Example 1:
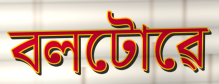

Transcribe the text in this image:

বলটোৱে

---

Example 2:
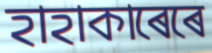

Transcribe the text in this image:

হাহাকাৰেৰে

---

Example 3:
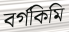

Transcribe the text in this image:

বৰ্গকিমি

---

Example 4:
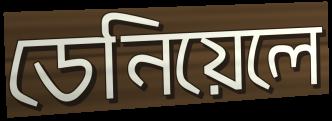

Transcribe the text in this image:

ডেনিয়েলে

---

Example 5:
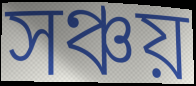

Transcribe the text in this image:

সঞ্চয়